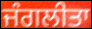
ਜੰਗਲੀਤਾ